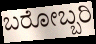
ಬರೋಬ್ಬರಿ